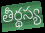
తీర్థస్య